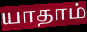
யாதாம்